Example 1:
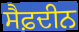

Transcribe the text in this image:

ਸੈਫ਼ਦੀਨ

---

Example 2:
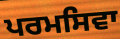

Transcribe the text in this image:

ਪਰਮਸਿਵਾ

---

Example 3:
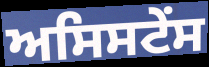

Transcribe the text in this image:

ਅਸਿਸਟੇਂਸ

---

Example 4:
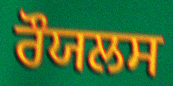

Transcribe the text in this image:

ਰੌਯਲਸ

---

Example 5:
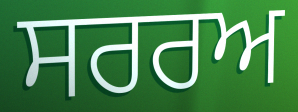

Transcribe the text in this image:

ਸਰਰਅ